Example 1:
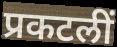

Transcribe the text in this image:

प्रकटलीं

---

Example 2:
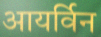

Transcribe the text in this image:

आयर्विन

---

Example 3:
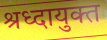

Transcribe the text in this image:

श्रध्दायुक्त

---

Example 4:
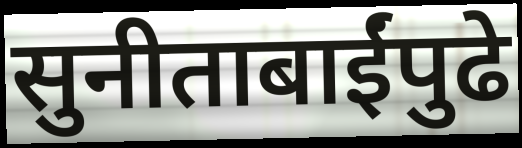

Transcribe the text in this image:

सुनीताबाईंपुढे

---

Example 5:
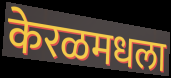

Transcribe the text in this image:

केरळमधला